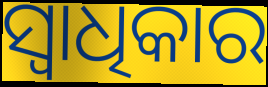
ସ୍ଵାଧିକାର